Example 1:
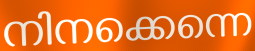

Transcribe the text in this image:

നിനക്കെന്നെ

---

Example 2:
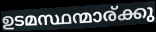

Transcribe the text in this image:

ഉടമസ്ഥന്മാര്ക്കു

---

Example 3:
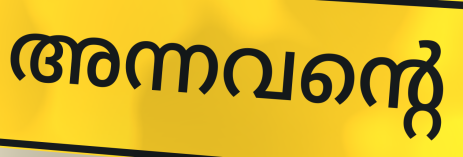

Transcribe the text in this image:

അന്നവന്റെ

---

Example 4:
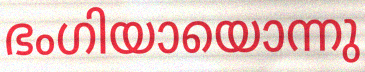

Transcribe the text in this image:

ഭംഗിയായൊന്നു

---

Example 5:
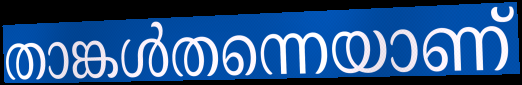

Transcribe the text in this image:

താങ്കൾതന്നെയാണ്